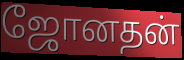
ஜோனதன்